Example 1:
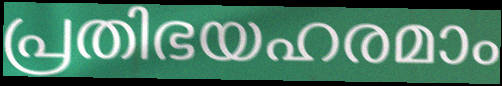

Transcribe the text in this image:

പ്രതിഭയഹരമാം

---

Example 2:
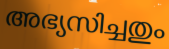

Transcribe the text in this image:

അഭ്യസിച്ചതും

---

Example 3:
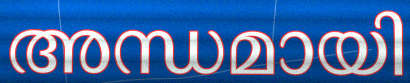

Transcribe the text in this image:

അന്ധമായി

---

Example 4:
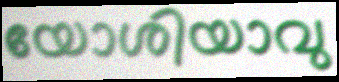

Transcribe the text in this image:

യോശിയാവു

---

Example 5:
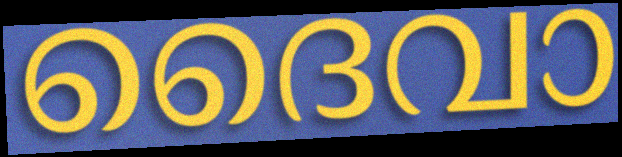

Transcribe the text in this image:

ദൈവാ